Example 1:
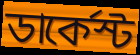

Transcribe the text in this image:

ডার্কেস্ট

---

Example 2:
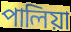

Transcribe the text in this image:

পালিয়া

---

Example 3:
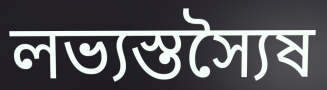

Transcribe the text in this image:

লভ্যস্তস্যৈষ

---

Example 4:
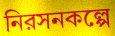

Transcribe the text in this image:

নিরসনকল্পে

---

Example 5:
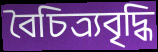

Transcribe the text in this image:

বৈচিত্র্যবৃদ্ধি